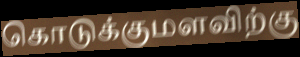
கொடுக்குமளவிற்கு